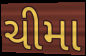
ચીમા